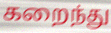
கறைந்து